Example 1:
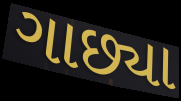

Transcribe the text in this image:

ગાછ્યા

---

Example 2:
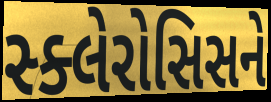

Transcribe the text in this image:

સ્ક્લેરોસિસને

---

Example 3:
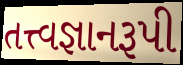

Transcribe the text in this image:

તત્ત્વજ્ઞાનરૂપી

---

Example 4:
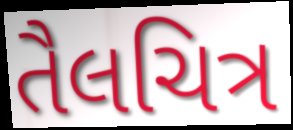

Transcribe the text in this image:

તૈલચિત્ર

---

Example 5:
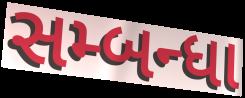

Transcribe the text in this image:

સમ્બન્ધા